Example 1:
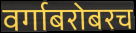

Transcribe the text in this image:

वर्गाबरोबरच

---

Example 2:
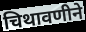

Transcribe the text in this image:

चिथावणीने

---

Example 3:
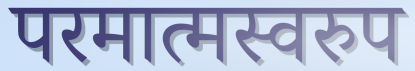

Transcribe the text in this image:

परमात्मस्वरुप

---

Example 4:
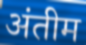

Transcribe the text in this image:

अंतीम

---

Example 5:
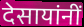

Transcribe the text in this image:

देसायांनीं